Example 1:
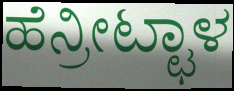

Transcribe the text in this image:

ಹೆನ್ರೀಟ್ಟಾಳ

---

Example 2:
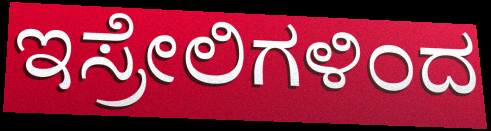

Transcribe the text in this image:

ಇಸ್ರೇಲಿಗಳಿಂದ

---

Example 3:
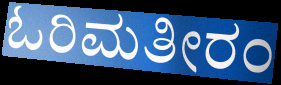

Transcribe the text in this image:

ಓರಿಮತೀರಂ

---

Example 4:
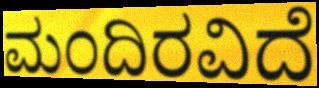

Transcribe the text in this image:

ಮಂದಿರವಿದೆ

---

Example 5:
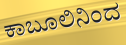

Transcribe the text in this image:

ಕಾಬೂಲಿನಿಂದ